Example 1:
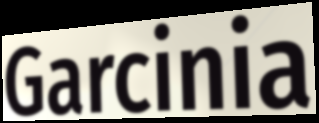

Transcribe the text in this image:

Garcinia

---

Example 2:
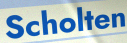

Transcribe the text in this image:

Scholten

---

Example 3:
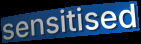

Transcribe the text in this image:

sensitised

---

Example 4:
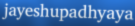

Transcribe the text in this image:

jayeshupadhyaya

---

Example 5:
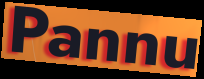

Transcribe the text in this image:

Pannu